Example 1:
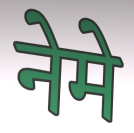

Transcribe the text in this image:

नेमे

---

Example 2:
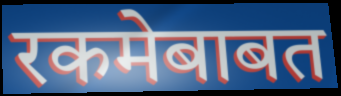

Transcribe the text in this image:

रकमेबाबत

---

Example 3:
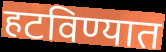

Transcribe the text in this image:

हटविण्यात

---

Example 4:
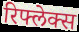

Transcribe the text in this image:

रिफ्लेक्स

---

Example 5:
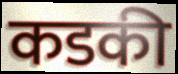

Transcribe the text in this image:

कडकी